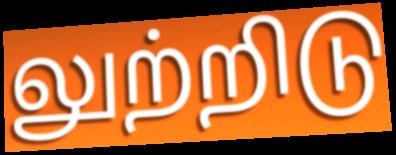
லுற்றிடு